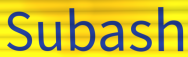
Subash